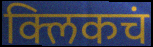
क्लिकचं